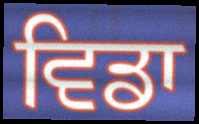
ਵਿਡਾ